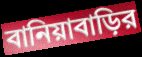
বানিয়াবাড়ির